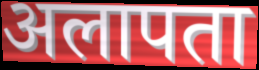
अलापता